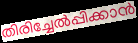
തിരിച്ചേൽപ്പിക്കാൻ